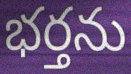
భర్తను